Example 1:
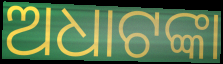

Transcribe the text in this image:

ଅଧାଟଙ୍କା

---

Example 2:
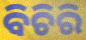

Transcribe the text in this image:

ବିଚିରି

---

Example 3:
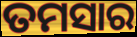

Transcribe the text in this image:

ତମସାର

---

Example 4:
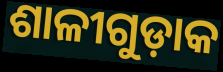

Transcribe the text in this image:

ଶାଳୀଗୁଡ଼ାକ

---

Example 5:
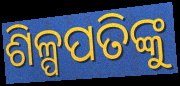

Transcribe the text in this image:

ଶିଳ୍ପପତିଙ୍କୁ